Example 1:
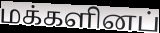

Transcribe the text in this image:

மக்களினப்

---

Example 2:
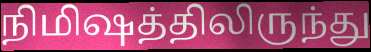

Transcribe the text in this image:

நிமிஷத்திலிருந்து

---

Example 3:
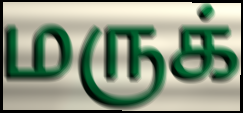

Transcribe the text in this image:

மருக்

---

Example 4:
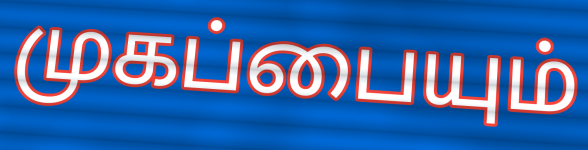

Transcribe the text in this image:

முகப்பையும்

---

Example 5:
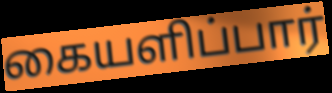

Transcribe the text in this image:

கையளிப்பார்